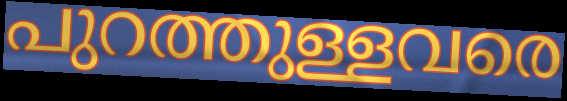
പുറത്തുള്ളവരെ